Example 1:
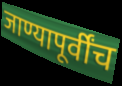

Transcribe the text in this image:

जाण्यापूर्वींच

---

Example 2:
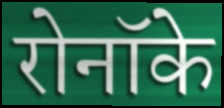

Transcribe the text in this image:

रोनॉके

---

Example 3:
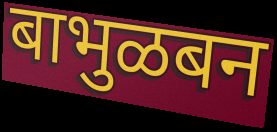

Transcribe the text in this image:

बाभुळबन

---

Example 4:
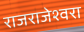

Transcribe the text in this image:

राजराजेश्वरा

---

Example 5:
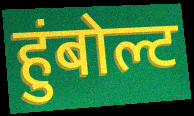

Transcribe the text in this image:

हुंबोल्ट